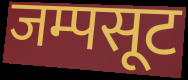
जम्पसूट